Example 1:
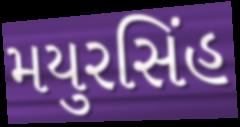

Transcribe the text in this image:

મયુરસિંહ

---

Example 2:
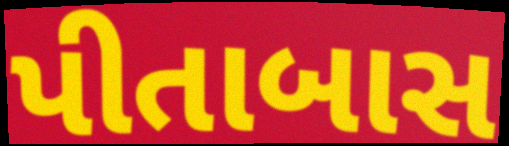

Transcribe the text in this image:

પીતાબાસ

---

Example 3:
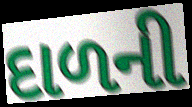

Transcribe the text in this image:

દાળની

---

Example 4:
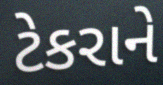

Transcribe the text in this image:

ટેકરાને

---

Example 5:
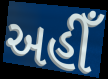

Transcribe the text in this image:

અહીઁ